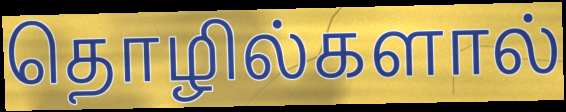
தொழில்களால்